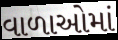
વાળાઓમાં